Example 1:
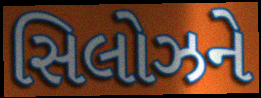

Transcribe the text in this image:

સિલોઝને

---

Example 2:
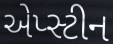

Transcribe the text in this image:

એપ્સ્ટીન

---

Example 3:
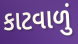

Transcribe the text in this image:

કાટવાળું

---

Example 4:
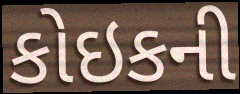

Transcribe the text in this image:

કોઇકની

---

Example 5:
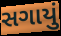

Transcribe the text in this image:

સગાયું